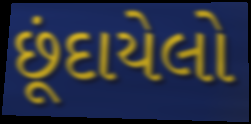
છૂંદાયેલો